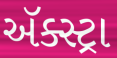
ઍક્સ્ટ્રા